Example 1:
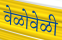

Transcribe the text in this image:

वेळोवेळी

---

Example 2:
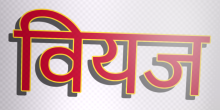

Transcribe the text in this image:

वियज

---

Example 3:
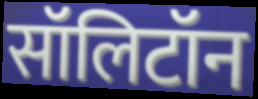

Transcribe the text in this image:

सॉलिटॉन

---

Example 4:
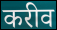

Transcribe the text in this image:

करीव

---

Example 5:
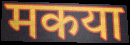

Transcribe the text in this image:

मकया